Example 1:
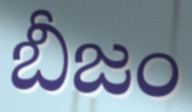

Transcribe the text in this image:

బీజం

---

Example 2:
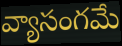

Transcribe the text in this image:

వ్యాసంగమే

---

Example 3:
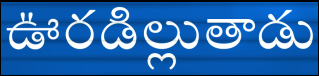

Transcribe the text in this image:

ఊరడిల్లుతాడు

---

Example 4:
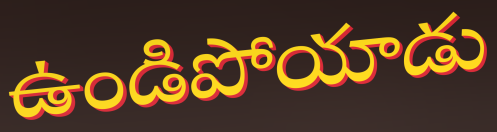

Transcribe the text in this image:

ఉండిపోయాడు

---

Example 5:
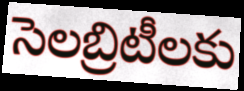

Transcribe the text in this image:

సెలబ్రిటీలకు